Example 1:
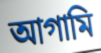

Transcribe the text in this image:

আগামি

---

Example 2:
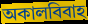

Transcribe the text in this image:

অকালবিবাহ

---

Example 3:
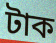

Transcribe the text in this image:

টাক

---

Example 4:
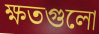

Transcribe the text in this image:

ক্ষতগুলো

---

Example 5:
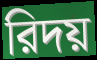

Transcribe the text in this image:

রিদয়